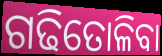
ଗଢିତୋଳିବା